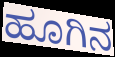
ಹೂಗಿನ